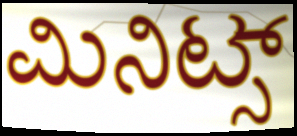
ಮಿನಿಟ್ಸ್